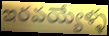
ఇరవయ్యేళ్ళ